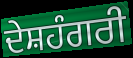
ਦੇਸ਼ਹੰਗਰੀ